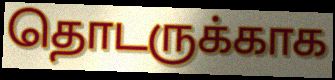
தொடருக்காக